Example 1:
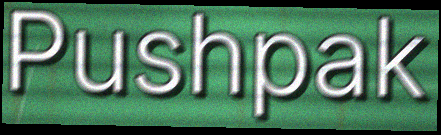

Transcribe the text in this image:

Pushpak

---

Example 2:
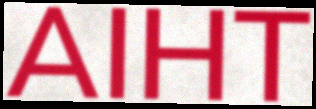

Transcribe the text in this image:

AIHT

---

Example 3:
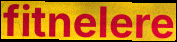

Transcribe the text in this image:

fitnelere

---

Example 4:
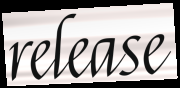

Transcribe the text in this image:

release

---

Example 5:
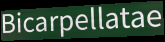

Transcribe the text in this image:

Bicarpellatae